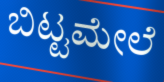
ಬಿಟ್ಟಮೇಲೆ